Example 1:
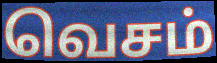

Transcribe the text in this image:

வெசம்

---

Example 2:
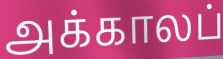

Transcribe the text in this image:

அக்காலப்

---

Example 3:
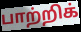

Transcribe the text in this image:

பாற்றிக்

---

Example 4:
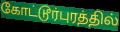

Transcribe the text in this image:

கோட்டூர்புரத்தில்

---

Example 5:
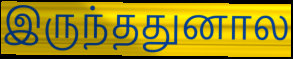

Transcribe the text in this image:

இருந்ததுனால